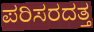
ಪರಿಸರದತ್ತ